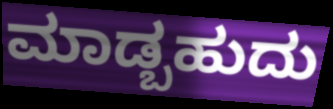
ಮಾಡ್ಬಹುದು